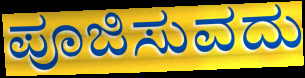
ಪೂಜಿಸುವದು